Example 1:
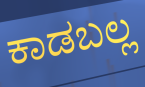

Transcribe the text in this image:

ಕಾಡಬಲ್ಲ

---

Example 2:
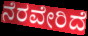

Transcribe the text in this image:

ನೆರವೇರಿದೆ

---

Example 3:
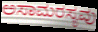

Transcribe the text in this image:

ಅಸಾಮರಸ್ಯವು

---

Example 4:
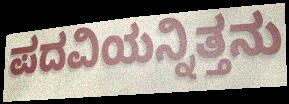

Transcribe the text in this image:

ಪದವಿಯನ್ನಿತ್ತನು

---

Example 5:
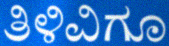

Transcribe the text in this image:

ತಿಳಿವಿಗೂ